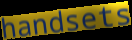
handsets